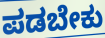
ಪಡಬೇಕು